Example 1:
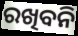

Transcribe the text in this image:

ରଖିବନି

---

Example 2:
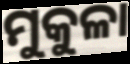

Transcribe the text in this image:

ମୁକୁଳା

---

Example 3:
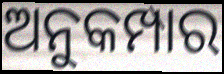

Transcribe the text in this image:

ଅନୁକମ୍ପାର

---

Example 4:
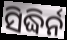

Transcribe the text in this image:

ସିଦ୍ଧିର୍ନ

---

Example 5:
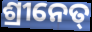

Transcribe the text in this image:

ଶ୍ରୀନେତ୍